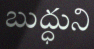
బుద్ధుని